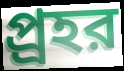
প্র্রহর